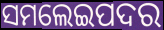
ସମଲେଇପଦର